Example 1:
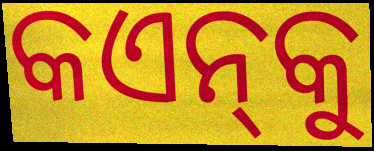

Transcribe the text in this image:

କଏନ୍‌କୁ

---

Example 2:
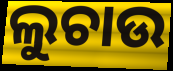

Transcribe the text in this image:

ଲୁଚାଉ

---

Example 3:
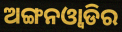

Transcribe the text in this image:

ଅଙ୍ଗନଓ୍ବାଡିର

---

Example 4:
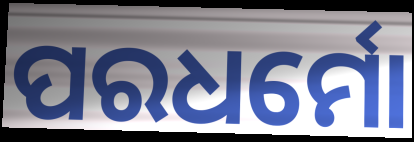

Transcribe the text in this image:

ପରଧର୍ମୋ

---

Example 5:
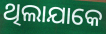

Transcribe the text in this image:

ଥିଲାଯାକେ